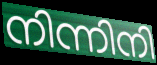
നിന്നിനി